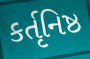
કર્તૃનિષ્ઠ